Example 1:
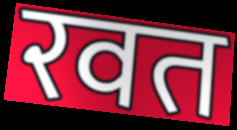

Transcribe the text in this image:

रवत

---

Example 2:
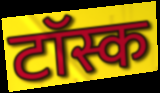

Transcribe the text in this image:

टॉस्‍क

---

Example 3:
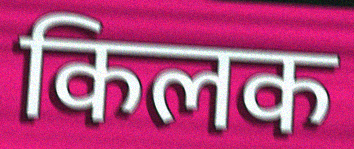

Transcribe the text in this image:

किलक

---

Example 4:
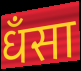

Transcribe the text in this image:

धँसा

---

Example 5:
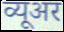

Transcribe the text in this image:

व्यूअर